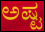
ಅಷ್ಟ